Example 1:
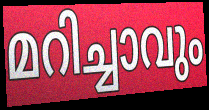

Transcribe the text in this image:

മറിച്ചാവും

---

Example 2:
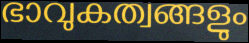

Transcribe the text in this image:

ഭാവുകത്വങ്ങളും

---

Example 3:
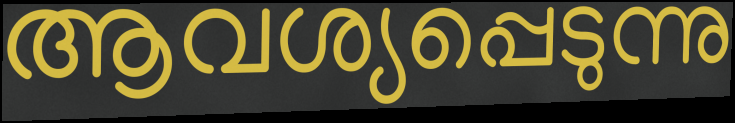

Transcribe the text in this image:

ആവശ്യപ്പെടുന്നു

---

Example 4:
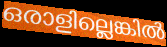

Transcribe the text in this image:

ഒരാളില്ലെങ്കിൽ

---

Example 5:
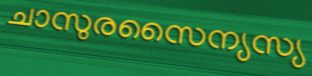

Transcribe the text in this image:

ചാസുരസൈന്യസ്യ